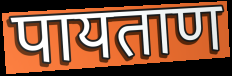
पायताण